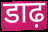
डाढ़